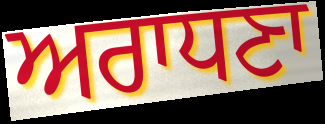
ਅਰਾਧਣਾ